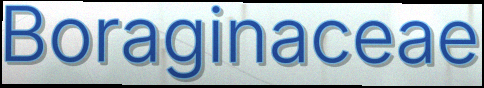
Boraginaceae